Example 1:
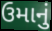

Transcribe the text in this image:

ઉમાનું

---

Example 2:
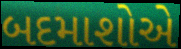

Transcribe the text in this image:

બદમાશોએ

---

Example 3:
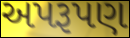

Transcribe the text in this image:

અપરૂપણ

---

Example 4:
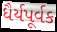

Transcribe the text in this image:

ધૈર્યપૂર્વક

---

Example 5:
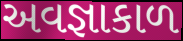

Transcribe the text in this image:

અવજ્ઞાકાળ